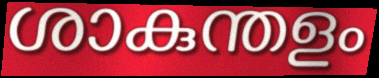
ശാകുന്തളം